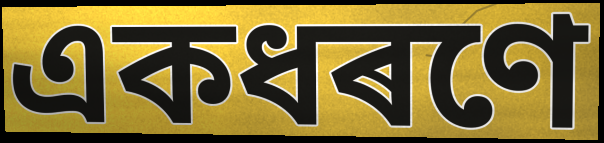
একধৰণে